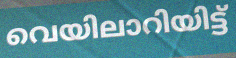
വെയിലാറിയിട്ട്